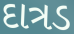
દાત્રડ